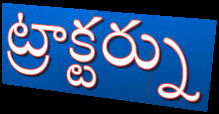
ట్రాక్టర్ను